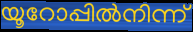
യൂറോപ്പിൽനിന്ന്